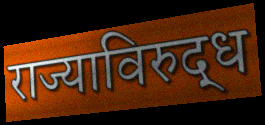
राज्याविरुद्ध